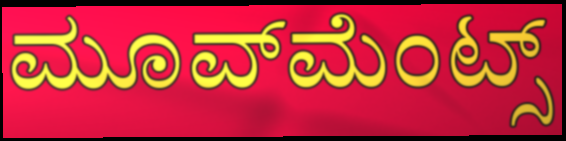
ಮೂವ್‌ಮೆಂಟ್ಸ್